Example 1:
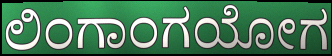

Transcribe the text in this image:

ಲಿಂಗಾಂಗಯೋಗ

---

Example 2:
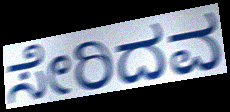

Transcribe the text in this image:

ಸೇರಿದವ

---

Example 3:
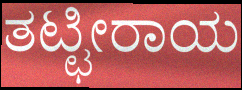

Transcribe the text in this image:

ತಟ್ಟೀರಾಯ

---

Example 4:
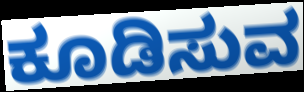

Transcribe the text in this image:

ಕೂಡಿಸುವ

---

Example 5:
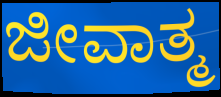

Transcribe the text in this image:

ಜೀವಾತ್ಮ